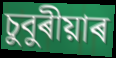
চুবুৰীয়াৰ